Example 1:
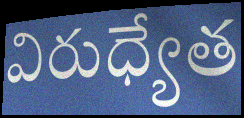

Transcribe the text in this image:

విరుధ్యేత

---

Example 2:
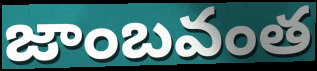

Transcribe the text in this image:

జాంబవంత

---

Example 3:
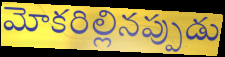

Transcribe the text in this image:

మోకరిల్లినప్పుడు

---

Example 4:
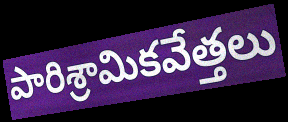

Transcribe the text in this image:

పారిశ్రామికవేత్తలు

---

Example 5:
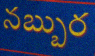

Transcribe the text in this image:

నబ్బుర